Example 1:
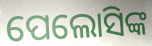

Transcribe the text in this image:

ପେଲୋସିଙ୍କ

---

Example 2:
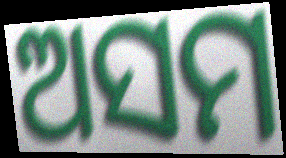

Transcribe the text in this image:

ଅସମ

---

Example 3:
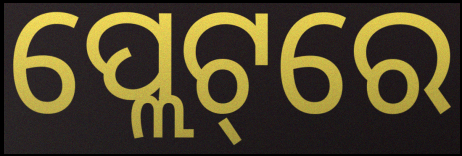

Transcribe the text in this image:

ପ୍ଲେଟ୍‌ରେ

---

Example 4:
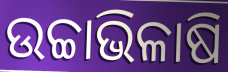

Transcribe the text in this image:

ଉଚ୍ଚାଭିଳାଷି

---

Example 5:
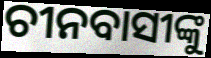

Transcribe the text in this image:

ଚୀନବାସୀଙ୍କୁ